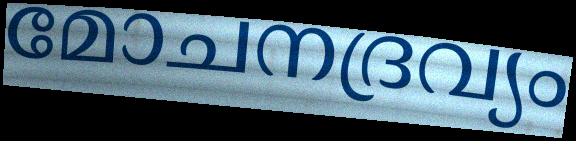
മോചനദ്രവ്യം